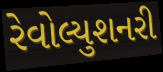
રેવોલ્યુશનરી